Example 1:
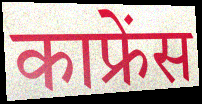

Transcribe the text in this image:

काफ्रेंस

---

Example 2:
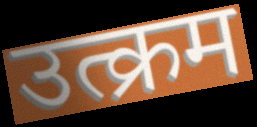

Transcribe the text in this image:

उत्क्रम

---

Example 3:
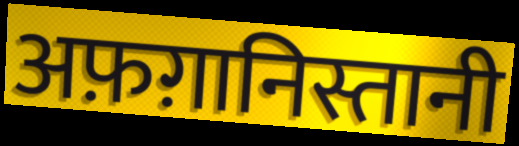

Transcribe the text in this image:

अफ़ग़ानिस्तानी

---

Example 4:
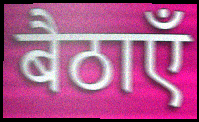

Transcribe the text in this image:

बैठाएँ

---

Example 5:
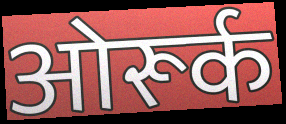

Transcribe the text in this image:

ओरूर्क